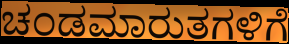
ಚಂಡಮಾರುತಗಳಿಗೆ